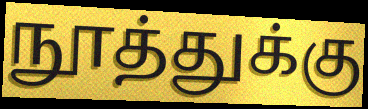
நூத்துக்கு